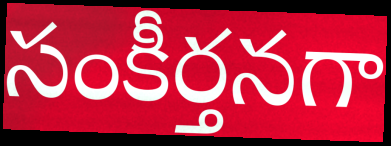
సంకీర్తనగా